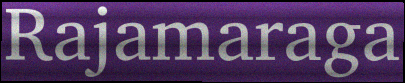
Rajamaraga